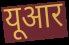
यूआर